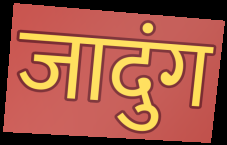
जादुंग